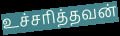
உச்சரித்தவன்